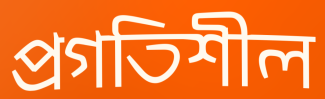
প্ৰগতিশীল